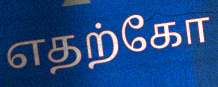
எதற்கோ